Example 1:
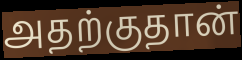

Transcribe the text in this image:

அதற்குதான்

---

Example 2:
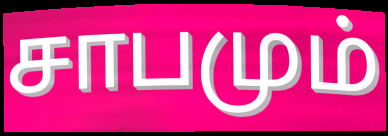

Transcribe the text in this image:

சாபமும்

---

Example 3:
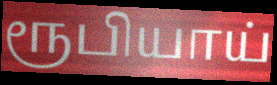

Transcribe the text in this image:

ரூபியாய்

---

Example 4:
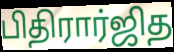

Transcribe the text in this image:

பிதிரார்ஜித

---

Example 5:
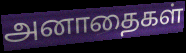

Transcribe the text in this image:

அனாதைகள்